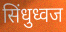
सिंधुध्वज